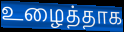
உழைத்தாக